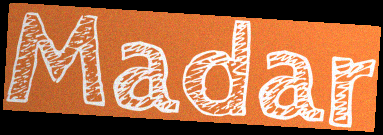
Madar